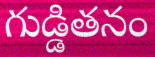
గుడ్డితనం